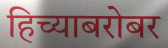
हिच्याबरोबर